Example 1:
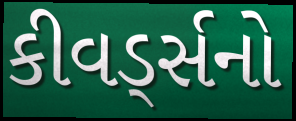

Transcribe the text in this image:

કીવર્ડ્સનો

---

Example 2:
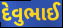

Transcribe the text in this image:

દેવુભાઈ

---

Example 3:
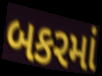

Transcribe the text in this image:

બકરમાં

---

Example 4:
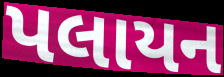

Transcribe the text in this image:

પલાયન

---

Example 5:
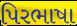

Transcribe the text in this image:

પિરભાષા